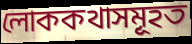
লোককথাসমূহত